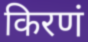
किरणं